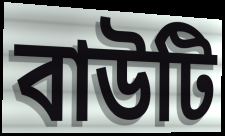
বাউটি